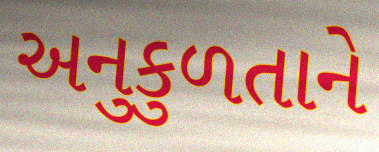
અનુકુળતાને